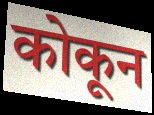
कोकून